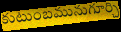
కుటుంబమునుగూర్చి